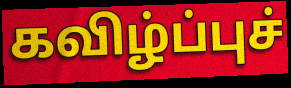
கவிழ்ப்புச்